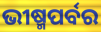
ଭୀଷ୍ମପର୍ବର